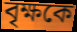
বৃক্ষকে